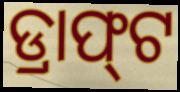
ଡ୍ରାଫ୍‍ଟ